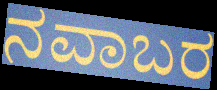
ನವಾಬರ